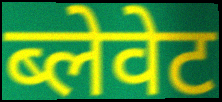
ब्लेवेट